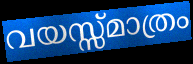
വയസ്സ്മാത്രം